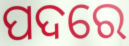
ପଦରେ